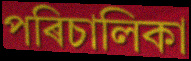
পৰিচালিকা